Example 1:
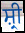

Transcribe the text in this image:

ਸ਼੍ਰੀ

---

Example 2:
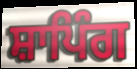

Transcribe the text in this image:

ਸ਼ਾਪਿੰਗ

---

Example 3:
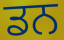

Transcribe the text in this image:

ਡਨ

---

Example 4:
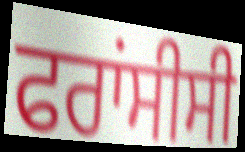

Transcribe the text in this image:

ਫਰਾਂਸੀਸੀ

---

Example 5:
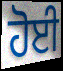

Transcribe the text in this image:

ਹੋਈ